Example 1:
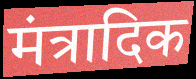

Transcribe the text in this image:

मंत्रादिक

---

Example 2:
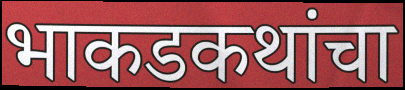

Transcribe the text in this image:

भाकडकथांचा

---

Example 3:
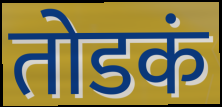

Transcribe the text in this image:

तोडकं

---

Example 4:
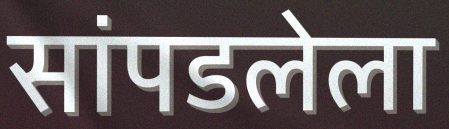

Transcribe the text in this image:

सांपडलेला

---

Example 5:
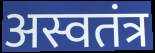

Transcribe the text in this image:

अस्वतंत्र